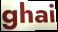
ghai